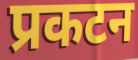
प्रकटन